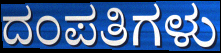
ದಂಪತಿಗಳು